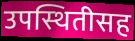
उपस्थितीसह